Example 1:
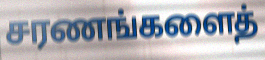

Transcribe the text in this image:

சரணங்களைத்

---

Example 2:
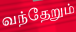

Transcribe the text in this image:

வந்தேறும்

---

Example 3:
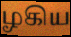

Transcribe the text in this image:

ழகிய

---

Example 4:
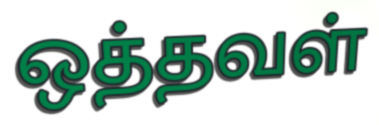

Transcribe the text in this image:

ஒத்தவள்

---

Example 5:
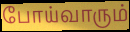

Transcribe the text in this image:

போய்வாரும்